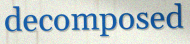
decomposed